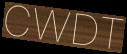
CWDT